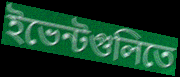
ইভেন্টগুলিতে